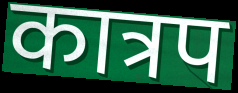
कात्रप